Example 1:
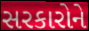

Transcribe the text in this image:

સરકારોને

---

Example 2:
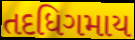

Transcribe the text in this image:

તદધિગમાય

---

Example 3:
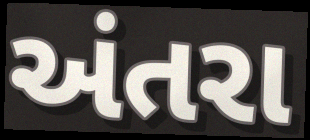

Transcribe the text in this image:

અંતરા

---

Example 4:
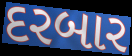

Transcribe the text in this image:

દરબાર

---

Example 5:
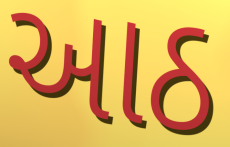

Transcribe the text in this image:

આઠ